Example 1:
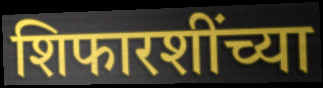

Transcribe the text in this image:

शिफारशींच्या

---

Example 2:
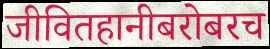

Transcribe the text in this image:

जीवितहानीबरोबरच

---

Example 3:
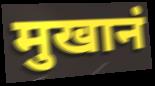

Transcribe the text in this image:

मुखानं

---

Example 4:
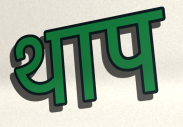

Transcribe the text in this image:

थाप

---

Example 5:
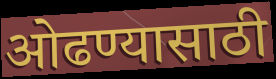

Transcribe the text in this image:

ओढण्यासाठी